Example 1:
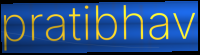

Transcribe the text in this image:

pratibhav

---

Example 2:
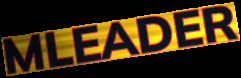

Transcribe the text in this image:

MLEADER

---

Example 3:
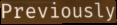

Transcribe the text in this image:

Previously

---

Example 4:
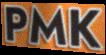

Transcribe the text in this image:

PMK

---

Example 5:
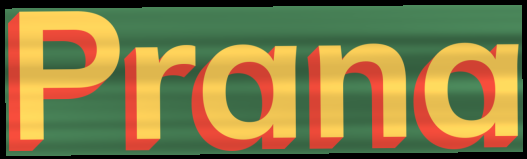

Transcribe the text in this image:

Prana